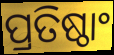
ପ୍ରତିଷ୍ଠାଂ